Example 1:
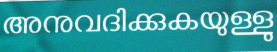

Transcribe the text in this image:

അനുവദിക്കുകയുള്ളു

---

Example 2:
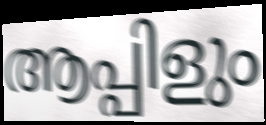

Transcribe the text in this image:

ആപ്പിളും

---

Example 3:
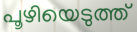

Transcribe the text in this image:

പൂഴിയെടുത്ത്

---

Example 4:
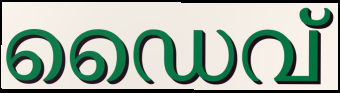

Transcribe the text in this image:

ഡൈവ്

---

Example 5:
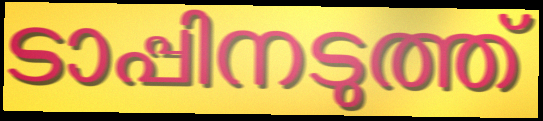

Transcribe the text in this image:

ടാപ്പിനടുത്ത്